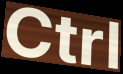
Ctrl